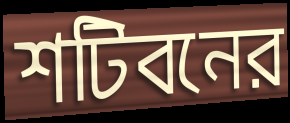
শটিবনের